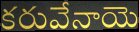
కరువేనాయె